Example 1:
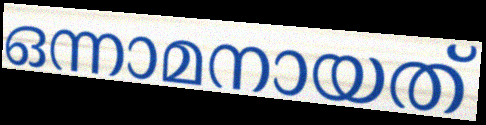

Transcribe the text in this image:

ഒന്നാമനായത്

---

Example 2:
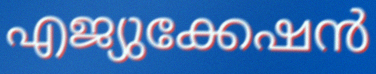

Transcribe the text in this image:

എജ്യുക്കേഷൻ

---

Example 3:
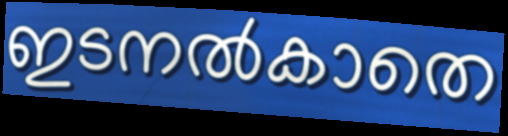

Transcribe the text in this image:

ഇടനൽകാതെ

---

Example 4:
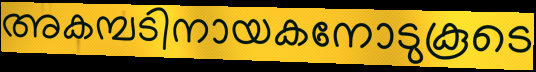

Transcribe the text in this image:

അകമ്പടിനായകനോടുകൂടെ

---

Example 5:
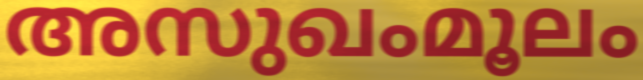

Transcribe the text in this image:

അസുഖംമൂലം